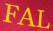
FAL